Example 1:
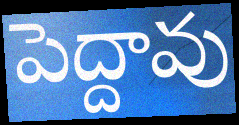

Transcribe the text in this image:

పెద్దావు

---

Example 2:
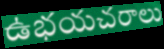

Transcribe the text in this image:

ఉభయచరాలు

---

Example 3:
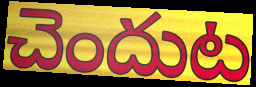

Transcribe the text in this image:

చెందుట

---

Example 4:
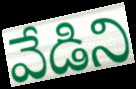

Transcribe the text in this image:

వేడిని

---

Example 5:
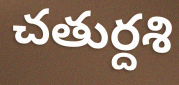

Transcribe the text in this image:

చతుర్దశి